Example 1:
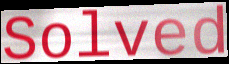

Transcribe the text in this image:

Solved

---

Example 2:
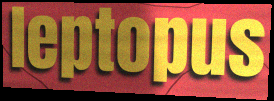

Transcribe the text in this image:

leptopus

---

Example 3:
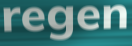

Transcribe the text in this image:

regen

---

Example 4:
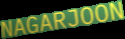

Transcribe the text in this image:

NAGARJOON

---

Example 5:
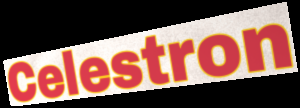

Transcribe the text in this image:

Celestron